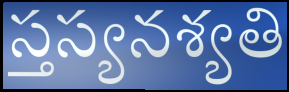
స్తస్యనశ్యతి